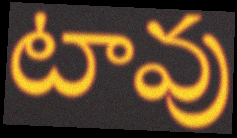
టావు